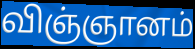
விஞ்ஞானம்